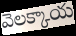
వెలక్కాయ